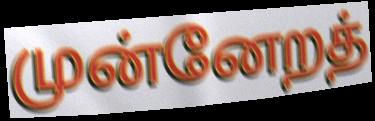
முன்னேறத்